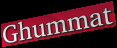
Ghummat